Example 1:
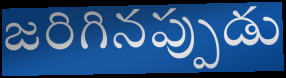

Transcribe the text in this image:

జరిగినప్పుడు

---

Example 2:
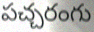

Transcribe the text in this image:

పచ్చరంగు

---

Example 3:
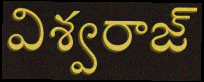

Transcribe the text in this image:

విశ్వరాజ్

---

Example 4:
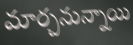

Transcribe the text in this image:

మార్చనున్నాయి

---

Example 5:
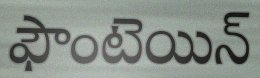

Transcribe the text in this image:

ఫౌంటెయిన్